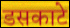
डसकाटे